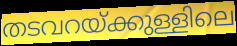
തടവറയ്ക്കുള്ളിലെ